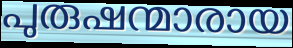
പുരുഷന്മാരായ